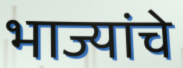
भाज्यांचे